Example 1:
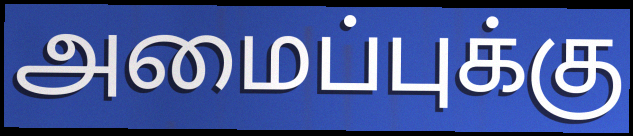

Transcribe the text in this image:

அமைப்புக்கு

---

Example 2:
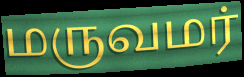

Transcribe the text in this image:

மருவமர்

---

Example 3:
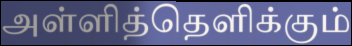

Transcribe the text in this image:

அள்ளித்தெளிக்கும்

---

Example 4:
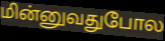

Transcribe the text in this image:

மின்னுவதுபோல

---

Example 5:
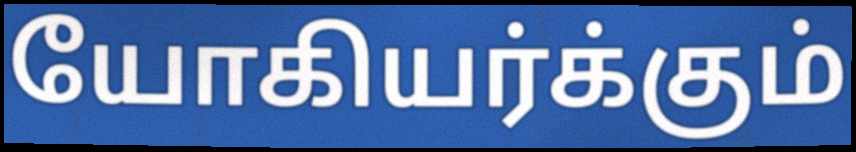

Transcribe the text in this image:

யோகியர்க்கும்